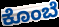
ಕೊಂಬೆ